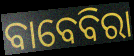
ବାବେବିରା